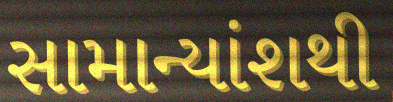
સામાન્યાંશથી